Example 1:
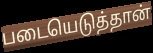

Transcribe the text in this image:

படையெடுத்தான்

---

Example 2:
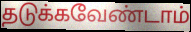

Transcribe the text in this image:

தடுக்கவேண்டாம்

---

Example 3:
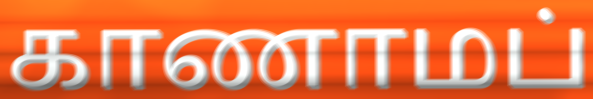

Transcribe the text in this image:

காணாமப்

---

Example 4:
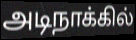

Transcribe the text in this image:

அடிநாக்கில்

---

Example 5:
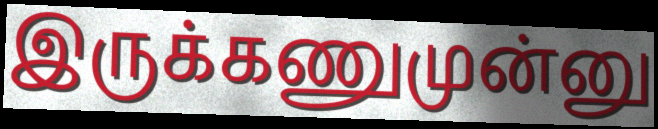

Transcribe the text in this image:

இருக்கணுமுன்னு